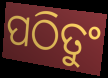
ପଠିତୁଂ